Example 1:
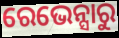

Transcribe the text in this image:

ରେଭେନ୍ସାରୁ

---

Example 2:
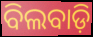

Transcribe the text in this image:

ବିଲବାଡ଼ି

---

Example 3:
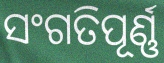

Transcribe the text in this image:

ସଂଗତିପୂର୍ଣ୍ଣ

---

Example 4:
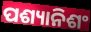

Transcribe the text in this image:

ପଶ୍ୟାନିଶଂ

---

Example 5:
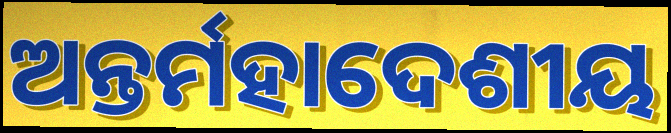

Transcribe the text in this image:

ଅନ୍ତର୍ମହାଦେଶୀୟ